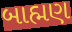
બાહ્મણ